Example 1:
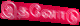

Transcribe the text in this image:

இதனோடு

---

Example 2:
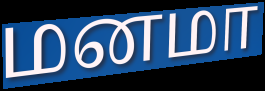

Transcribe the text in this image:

மனமா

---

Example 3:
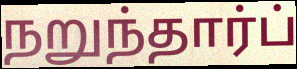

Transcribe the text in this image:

நறுந்தார்ப்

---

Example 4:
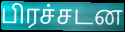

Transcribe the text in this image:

பிரச்சடன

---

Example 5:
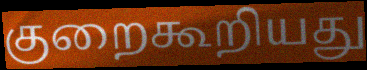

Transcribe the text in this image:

குறைகூறியது